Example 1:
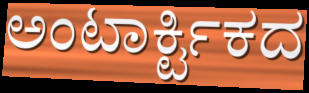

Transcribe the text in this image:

ಅಂಟಾರ್ಕ್ಟಿಕದ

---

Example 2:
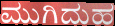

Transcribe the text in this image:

ಮುಗಿದುಹ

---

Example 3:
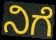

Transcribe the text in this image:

ನಿಗೆ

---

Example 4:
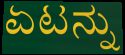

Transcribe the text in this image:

ಏಟನ್ನು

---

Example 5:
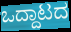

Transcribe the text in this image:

ಒದ್ದಾಟದ